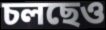
চলছেও